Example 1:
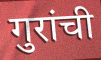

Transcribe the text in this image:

गुरांची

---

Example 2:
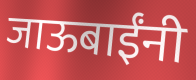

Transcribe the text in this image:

जाऊबाईंनी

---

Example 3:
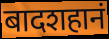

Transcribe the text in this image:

बादशहानं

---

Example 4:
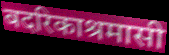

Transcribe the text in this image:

बदरिकाश्रमासी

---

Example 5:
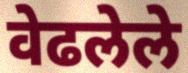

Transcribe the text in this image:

वेढलेले